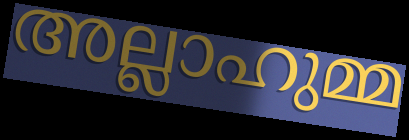
അല്ലാഹുമ്മ